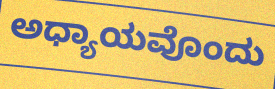
ಅಧ್ಯಾಯವೊಂದು